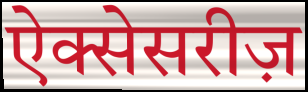
ऐक्सेसरीज़